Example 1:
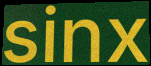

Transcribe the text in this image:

sinx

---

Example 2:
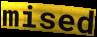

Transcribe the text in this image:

mised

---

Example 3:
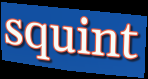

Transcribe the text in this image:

squint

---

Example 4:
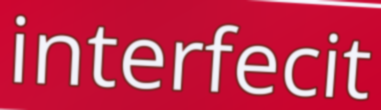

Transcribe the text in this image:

interfecit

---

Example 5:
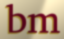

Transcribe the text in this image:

bm